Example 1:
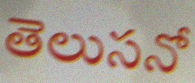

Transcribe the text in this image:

తెలుసనో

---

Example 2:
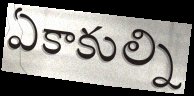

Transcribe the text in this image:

ఏకాకుల్ని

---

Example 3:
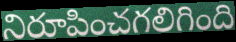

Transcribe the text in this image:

నిరూపించగలిగింది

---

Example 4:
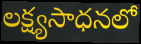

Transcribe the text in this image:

లక్ష్యసాధనలో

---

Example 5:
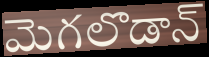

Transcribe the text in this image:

మెగలొడాన్